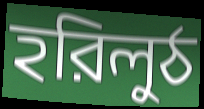
হরিলুঠ